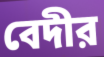
বেদীর